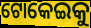
ଟୋକେଇକୁ